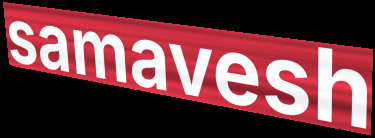
samavesh